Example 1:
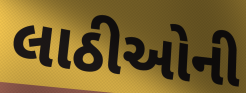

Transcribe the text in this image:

લાઠીઓની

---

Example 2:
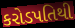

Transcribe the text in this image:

કરોડપતિથી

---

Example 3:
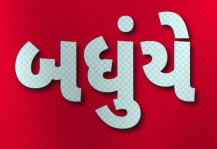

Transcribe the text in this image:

બધુંયે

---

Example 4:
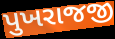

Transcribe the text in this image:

પુખરાજજી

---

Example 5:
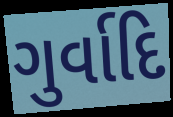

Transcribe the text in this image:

ગુર્વાદિ